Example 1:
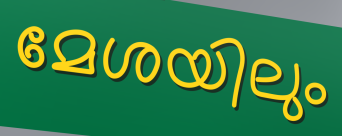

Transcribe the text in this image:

മേശയിലും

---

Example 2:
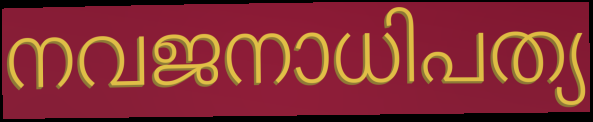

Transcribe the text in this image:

നവജനാധിപത്യ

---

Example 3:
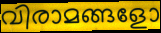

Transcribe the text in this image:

വിരാമങ്ങളോ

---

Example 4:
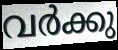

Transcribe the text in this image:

വർക്കു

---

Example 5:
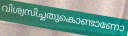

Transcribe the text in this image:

വിശ്വസിച്ചതുകൊണ്ടാണോ